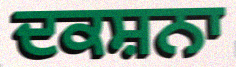
ਦਕਸ਼ਨਾ